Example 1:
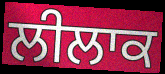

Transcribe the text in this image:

ਲੀਲਾਕ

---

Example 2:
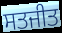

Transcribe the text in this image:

ਸਤਜੀਤ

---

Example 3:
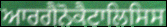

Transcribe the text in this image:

ਆਰਗੈਨੋਕੈਟਾਲਿਸਿਸ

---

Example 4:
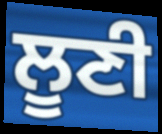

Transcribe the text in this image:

ਲੂਣੀ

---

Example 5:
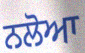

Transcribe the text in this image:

ਨਲੋਆ